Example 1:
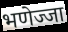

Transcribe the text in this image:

भणेज्जा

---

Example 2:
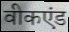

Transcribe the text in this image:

वीकएंड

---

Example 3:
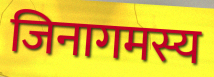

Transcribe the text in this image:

जिनागमस्य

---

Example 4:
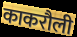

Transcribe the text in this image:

काकरौली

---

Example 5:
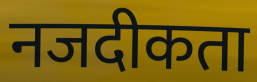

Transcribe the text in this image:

नजदीकता